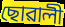
ছোৱালী